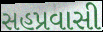
સહપ્રવાસી